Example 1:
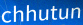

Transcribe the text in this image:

chhutun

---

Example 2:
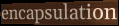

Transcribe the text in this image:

encapsulation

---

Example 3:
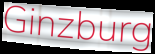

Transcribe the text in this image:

Ginzburg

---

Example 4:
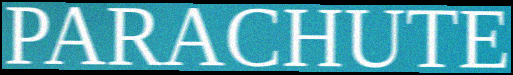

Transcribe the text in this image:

PARACHUTE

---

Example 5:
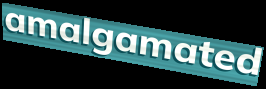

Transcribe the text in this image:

amalgamated